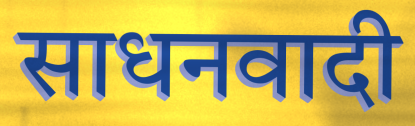
साधनवादी